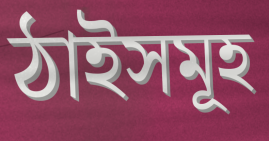
ঠাইসমূহ